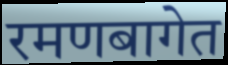
रमणबागेत